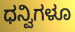
ಧನ್ವಿಗಳೂ